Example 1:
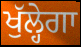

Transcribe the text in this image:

ਖੁੱਲ੍ਹੇਗਾ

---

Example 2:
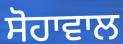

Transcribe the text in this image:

ਸੋਹਾਵਾਲ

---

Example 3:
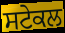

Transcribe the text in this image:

ਸਟੇਕਲ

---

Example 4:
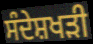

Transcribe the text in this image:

ਸੰਦੇਸ਼ਖੜੀ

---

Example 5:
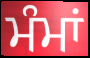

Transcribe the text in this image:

ਮੰਮਾਂ